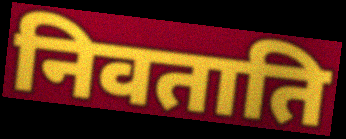
निवताति